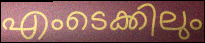
എംടെക്കിലും